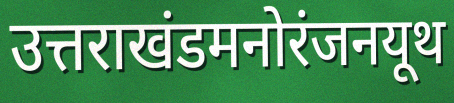
उत्तराखंडमनोरंजनयूथ